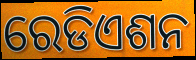
ରେଡିଏଶନ